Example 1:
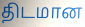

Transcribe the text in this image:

திடமான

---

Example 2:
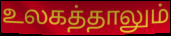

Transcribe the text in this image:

உலகத்தாலும்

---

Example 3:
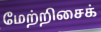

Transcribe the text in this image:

மேற்றிசைக்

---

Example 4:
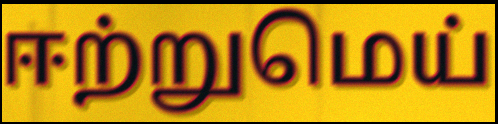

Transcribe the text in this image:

ஈற்றுமெய்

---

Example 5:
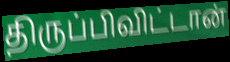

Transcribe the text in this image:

திருப்பிவிட்டான்